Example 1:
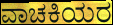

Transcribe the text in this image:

ವಾಚಕಿಯರ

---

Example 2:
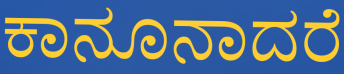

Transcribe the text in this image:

ಕಾನೂನಾದರೆ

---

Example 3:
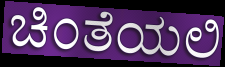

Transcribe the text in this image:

ಚಿಂತೆಯಲಿ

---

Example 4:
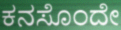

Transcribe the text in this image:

ಕನಸೊಂದೇ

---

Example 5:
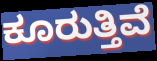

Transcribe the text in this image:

ಕೂರುತ್ತಿವೆ